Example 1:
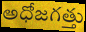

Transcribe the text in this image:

అధోజగత్తు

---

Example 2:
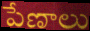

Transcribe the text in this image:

పేణాలు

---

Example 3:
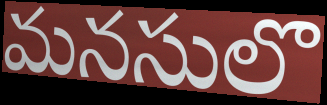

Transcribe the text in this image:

మనసులొ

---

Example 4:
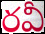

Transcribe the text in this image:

రవీ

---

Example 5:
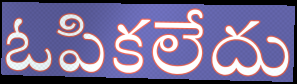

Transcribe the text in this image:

ఓపికలేదు